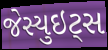
જેસ્યુઇટ્સ